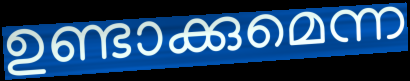
ഉണ്ടാക്കുമെന്ന